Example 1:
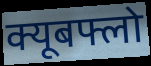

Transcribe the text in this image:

क्यूबफ्लो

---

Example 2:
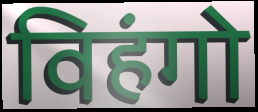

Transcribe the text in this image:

विहंगो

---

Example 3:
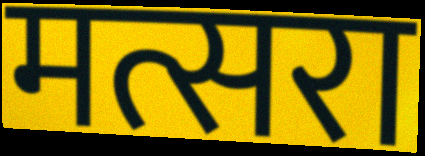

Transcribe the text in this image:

मत्सरा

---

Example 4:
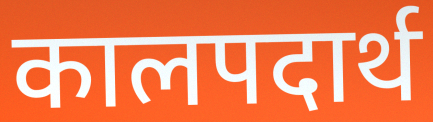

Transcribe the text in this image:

कालपदार्थ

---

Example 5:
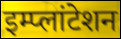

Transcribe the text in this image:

इम्प्लांटेशन